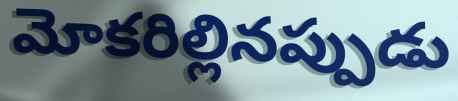
మోకరిల్లినప్పుడు